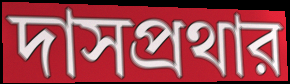
দাসপ্রথার